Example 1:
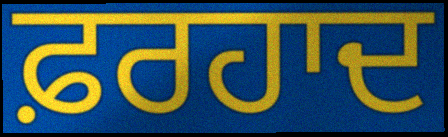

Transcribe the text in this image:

ਫ਼ਰਹਾਦ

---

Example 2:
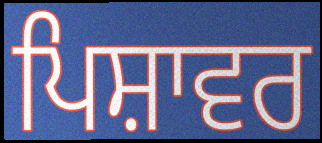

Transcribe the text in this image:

ਪਿਸ਼ਾਵਰ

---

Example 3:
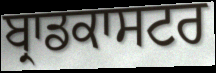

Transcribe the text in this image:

ਬ੍ਰਾਡਕਾਸਟਰ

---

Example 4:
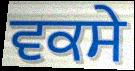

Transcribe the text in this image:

ਵਕਸੇ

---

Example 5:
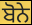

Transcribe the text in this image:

ਬੋਨੇ